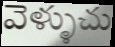
వెళ్ళుచు